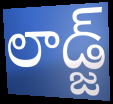
లాడ్జ్